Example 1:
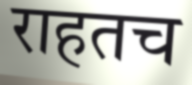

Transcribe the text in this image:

राहतच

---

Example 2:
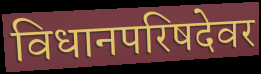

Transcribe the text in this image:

विधानपरिषदेवर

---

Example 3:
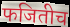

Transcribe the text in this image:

फजितीच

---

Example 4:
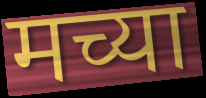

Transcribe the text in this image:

मच्या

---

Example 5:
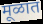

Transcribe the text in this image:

मूळात